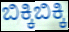
ಬಿಕ್ಕಿಬಿಕ್ಕಿ